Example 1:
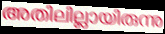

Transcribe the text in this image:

അതിലില്ലായിരുന്നു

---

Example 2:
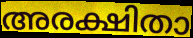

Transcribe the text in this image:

അരക്ഷിതാ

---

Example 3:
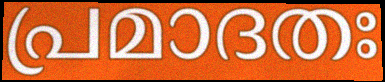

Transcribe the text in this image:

പ്രമാദതഃ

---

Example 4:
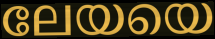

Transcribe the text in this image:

ലേയയെ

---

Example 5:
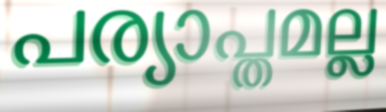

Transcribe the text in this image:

പര്യാപ്തമല്ല